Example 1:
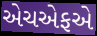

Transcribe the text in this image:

એચએફએ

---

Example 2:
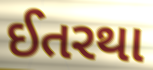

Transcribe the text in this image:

ઈતરથા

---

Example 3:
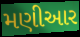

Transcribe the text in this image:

મણીઆર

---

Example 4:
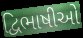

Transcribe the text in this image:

દ્વિભાષીઓ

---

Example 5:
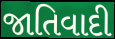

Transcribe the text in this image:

જાતિવાદી